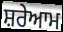
ਸ਼ਰੇਆਮ